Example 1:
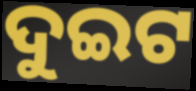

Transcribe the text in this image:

ଦୁଇଟ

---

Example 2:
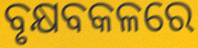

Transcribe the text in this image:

ବୃକ୍ଷବକଳରେ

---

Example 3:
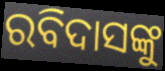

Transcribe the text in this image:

ରବିଦାସଙ୍କୁ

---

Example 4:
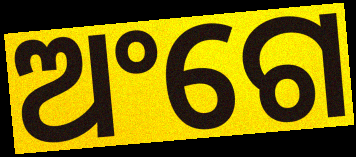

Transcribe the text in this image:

ଅଂଗେ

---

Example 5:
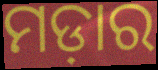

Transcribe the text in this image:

ମଡ଼ାର